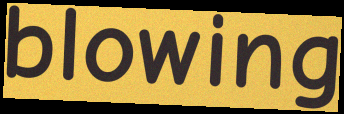
blowing